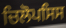
ਚਿਲੋਪਸਿਸ